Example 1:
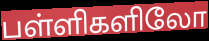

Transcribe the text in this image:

பள்ளிகளிலோ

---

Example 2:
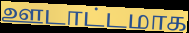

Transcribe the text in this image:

ஊடாட்டமாக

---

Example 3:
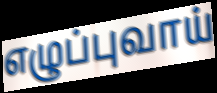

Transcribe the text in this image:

எழுப்புவாய்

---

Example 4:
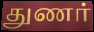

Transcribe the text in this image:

துணர்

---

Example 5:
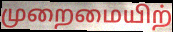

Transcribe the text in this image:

முறைமையிற்